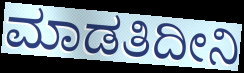
ಮಾಡತಿದೀನಿ